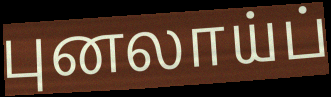
புனலாய்ப்